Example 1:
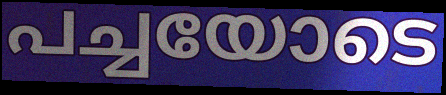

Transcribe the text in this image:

പച്ചയോടെ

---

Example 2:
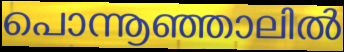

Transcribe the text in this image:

പൊന്നൂഞ്ഞാലിൽ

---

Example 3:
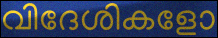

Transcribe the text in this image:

വിദേശികളോ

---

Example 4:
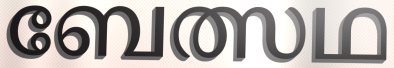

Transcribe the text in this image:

ബേത്സഥ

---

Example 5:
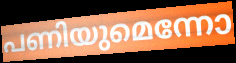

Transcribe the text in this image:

പണിയുമെന്നോ